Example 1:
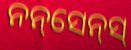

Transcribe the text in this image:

ନନ୍‌ସେନ୍‌ସ୍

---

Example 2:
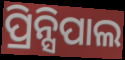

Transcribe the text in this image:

ପ୍ରିନ୍ସିପାଲ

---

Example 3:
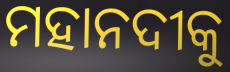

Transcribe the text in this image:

ମହାନଦୀକୁ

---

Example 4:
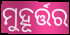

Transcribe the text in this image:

ମୁହୂର୍ତ୍ତର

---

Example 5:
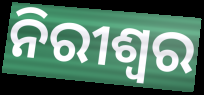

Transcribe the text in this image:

ନିରୀଶ୍ୱର